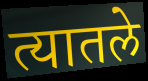
त्‍यातले